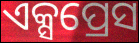
ଏକ୍ସପ୍ରେସ